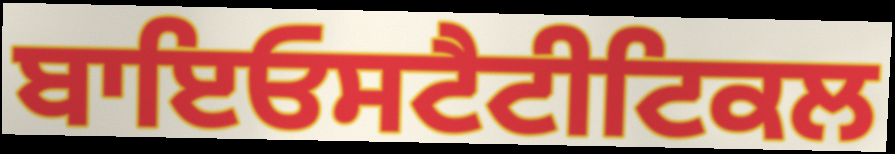
ਬਾਇਓਸਟੈਟੀਟਿਕਲ